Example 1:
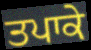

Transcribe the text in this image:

ਤਪਾਕੇ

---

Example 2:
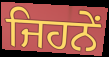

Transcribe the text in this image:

ਜਿਹਨੇਂ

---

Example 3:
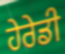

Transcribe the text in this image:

ਹੇਰੇਡੀ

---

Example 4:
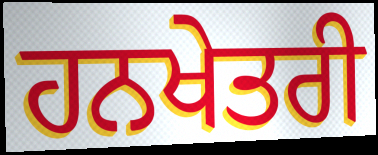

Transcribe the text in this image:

ਹਨਖੇਤਰੀ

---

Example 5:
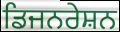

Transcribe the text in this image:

ਡਿਜਨਰੇਸ਼ਨ